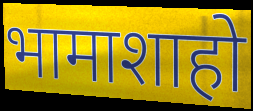
भामाशाहो